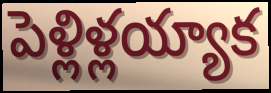
పెళ్లిళ్లయ్యాక